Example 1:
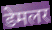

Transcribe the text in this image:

डेमलर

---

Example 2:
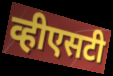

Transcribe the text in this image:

व्हीएसटी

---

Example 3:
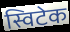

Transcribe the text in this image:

स्विटेक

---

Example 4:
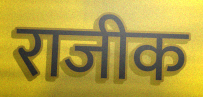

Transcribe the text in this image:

राजीक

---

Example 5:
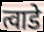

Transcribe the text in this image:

त्वाडे